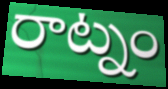
రాట్నం